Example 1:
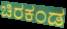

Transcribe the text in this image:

ಚಿರಕಂಡ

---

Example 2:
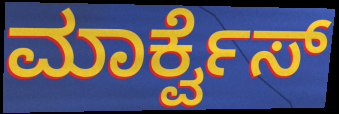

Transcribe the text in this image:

ಮಾರ್ಕ್ವೆಸ್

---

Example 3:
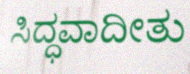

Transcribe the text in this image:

ಸಿದ್ಧವಾದೀತು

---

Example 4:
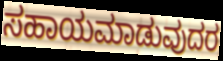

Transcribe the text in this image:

ಸಹಾಯಮಾಡುವುದರ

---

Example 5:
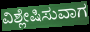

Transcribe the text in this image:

ವಿಶ್ಲೇಷಿಸುವಾಗ